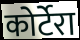
कोर्टेरा